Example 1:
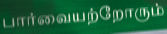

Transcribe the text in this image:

பார்வையற்றோரும்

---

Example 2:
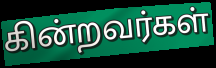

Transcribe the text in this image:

கின்றவர்கள்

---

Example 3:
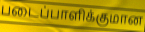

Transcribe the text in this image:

படைப்பாளிக்குமான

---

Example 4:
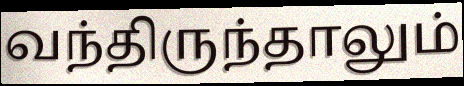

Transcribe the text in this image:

வந்திருந்தாலும்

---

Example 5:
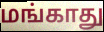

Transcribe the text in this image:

மங்காது